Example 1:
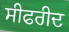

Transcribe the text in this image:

ਸੀਫਰੀਦ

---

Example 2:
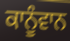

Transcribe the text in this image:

ਕਾਨੂੰਵਾਨ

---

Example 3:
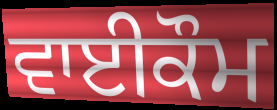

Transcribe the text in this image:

ਵਾਈਕੌਮ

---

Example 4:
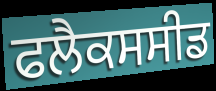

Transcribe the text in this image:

ਫਲੈਕਸਸੀਡ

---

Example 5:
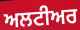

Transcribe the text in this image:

ਅਲਟੀਅਰ